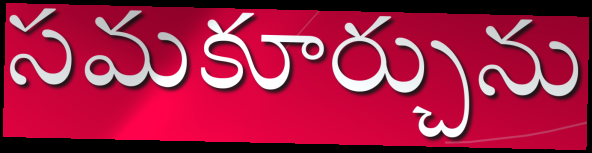
సమకూర్చును